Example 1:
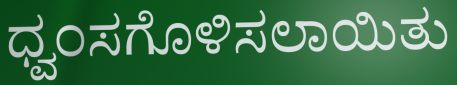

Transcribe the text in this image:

ಧ್ವಂಸಗೊಳಿಸಲಾಯಿತು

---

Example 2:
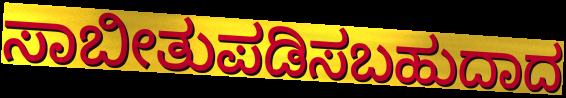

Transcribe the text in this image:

ಸಾಬೀತುಪಡಿಸಬಹುದಾದ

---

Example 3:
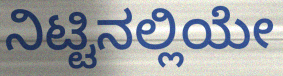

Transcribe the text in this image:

ನಿಟ್ಟಿನಲ್ಲಿಯೇ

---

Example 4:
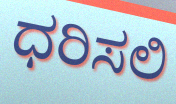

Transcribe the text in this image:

ಧರಿಸಲಿ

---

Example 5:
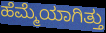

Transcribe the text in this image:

ಹೆಮ್ಮೆಯಾಗಿತ್ತು